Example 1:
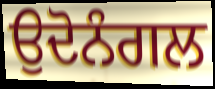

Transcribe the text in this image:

ਉਦੋਨੰਗਲ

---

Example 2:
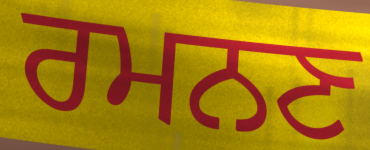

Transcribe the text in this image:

ਰਮਨਣ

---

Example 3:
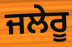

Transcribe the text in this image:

ਜਲੇਰੂ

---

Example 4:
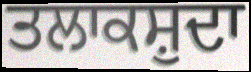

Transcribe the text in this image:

ਤਲਾਕਸ਼ੁਦਾ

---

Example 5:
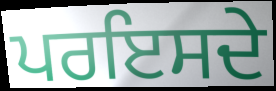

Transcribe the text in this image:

ਪਰਇਸਦੇ